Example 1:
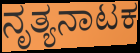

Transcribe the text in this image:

ನೃತ್ಯನಾಟಕ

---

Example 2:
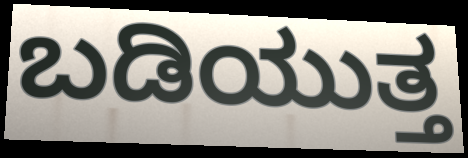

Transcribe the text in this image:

ಬಡಿಯುತ್ತ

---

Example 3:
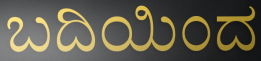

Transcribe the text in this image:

ಬದಿಯಿಂದ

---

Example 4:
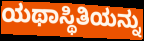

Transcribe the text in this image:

ಯಥಾಸ್ಥಿತಿಯನ್ನು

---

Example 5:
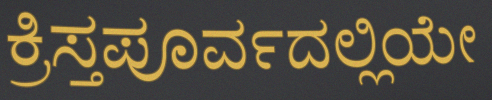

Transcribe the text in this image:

ಕ್ರಿಸ್ತಪೂರ್ವದಲ್ಲಿಯೇ